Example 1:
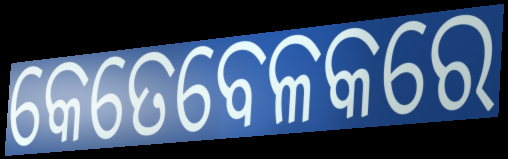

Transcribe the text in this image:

କେତେବେଳକରେ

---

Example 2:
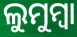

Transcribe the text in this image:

ଲୁମୁମ୍ବା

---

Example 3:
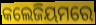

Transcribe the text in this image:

କଲେଜିୟମରେ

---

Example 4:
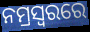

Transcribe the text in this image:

ନମ୍ରସ୍ୱରରେ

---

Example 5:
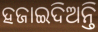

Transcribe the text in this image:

ହଜାଇଦିଅନ୍ତି